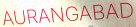
AURANGABAD